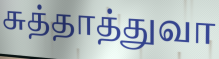
சுத்தாத்துவா